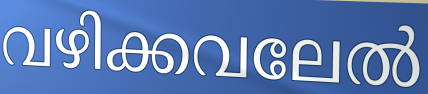
വഴിക്കവലേൽ